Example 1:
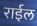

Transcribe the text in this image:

राईल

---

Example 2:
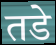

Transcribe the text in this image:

तडे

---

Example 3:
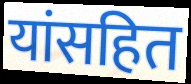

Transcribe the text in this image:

यांसहित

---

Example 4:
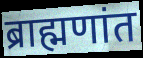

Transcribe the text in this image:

ब्राह्मणांत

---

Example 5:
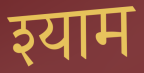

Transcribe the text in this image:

श्याम